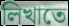
লিখাতে